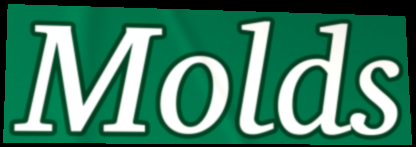
Molds